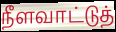
நீளவாட்டுத்